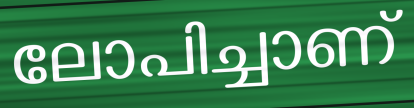
ലോപിച്ചാണ്